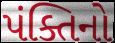
પંક્તિનો